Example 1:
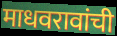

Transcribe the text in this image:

माधवरावांची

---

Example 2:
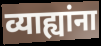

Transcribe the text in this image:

व्याह्यांना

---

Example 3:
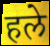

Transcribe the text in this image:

हले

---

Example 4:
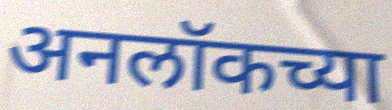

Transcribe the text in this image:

अनलॉकच्या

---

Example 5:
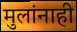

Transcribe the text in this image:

मुलांनाही